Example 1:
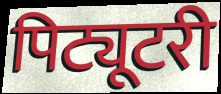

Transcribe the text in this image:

पिट्यूटरी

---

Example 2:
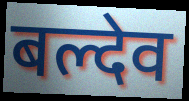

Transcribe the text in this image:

बल्देव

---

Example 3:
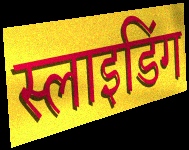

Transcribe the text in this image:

स्लाइडिंग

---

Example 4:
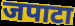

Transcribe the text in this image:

जपाटा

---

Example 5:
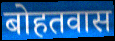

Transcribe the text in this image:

बोहतवास